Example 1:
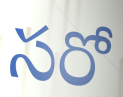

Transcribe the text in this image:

సరో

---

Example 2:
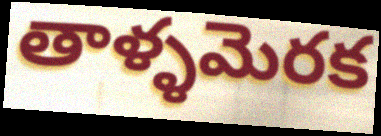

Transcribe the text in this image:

తాళ్ళమెరక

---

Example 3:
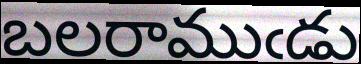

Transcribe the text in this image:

బలరాముఁడు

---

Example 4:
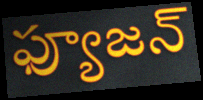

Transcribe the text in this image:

ఫ్యూజన్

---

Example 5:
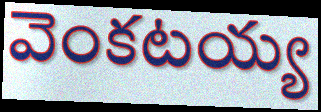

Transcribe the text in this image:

వెంకటయ్య